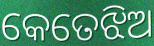
କେତେଝିଅ